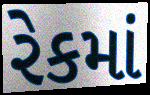
રેકમાં